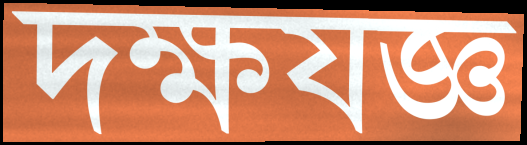
দক্ষযজ্ঞ